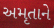
અમૃતાને